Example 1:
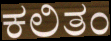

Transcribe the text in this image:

ಕಲಿತಂ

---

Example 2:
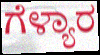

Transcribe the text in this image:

ಗೆಳ್ಯಾರ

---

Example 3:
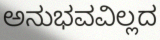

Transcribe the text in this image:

ಅನುಭವವಿಲ್ಲದ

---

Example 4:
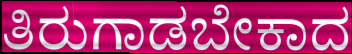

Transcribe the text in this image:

ತಿರುಗಾಡಬೇಕಾದ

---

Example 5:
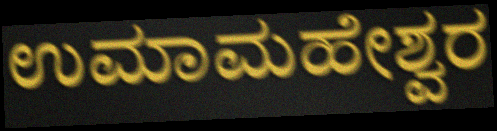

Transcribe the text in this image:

ಉಮಾಮಹೇಶ್ವರ